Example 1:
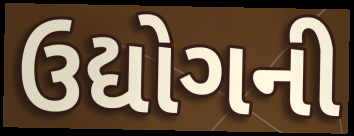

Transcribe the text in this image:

ઉદ્યોગની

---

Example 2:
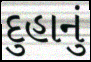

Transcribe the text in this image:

દુહાનું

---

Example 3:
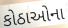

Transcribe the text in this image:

કોઠાઓના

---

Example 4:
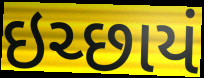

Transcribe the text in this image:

ઇચ્છાયં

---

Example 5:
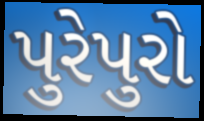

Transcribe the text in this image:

પુરેપુરો